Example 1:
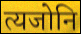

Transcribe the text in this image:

त्यजोनि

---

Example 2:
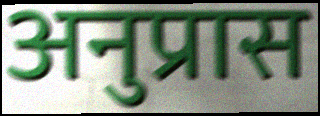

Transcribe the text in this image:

अनुप्रास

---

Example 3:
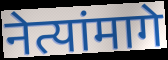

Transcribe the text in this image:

नेत्यांमागे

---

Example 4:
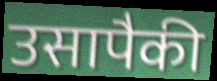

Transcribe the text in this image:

उसापैकी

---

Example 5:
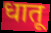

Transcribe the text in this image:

धातू